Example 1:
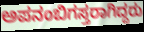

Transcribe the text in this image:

ಅಪನಂಬಿಗಸ್ತರಾಗಿದ್ದರು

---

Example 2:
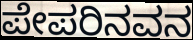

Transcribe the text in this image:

ಪೇಪರಿನವನ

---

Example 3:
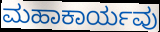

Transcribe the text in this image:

ಮಹಾಕಾರ್ಯವು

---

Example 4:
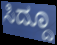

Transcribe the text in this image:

ಸಿದ್ದೂ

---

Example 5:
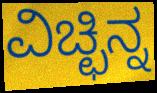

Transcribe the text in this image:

ವಿಚ್ಛಿನ್ನ